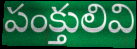
పంక్తులివి